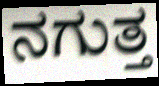
ನಗುತ್ತ